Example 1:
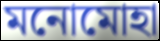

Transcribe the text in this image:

মনোমোহা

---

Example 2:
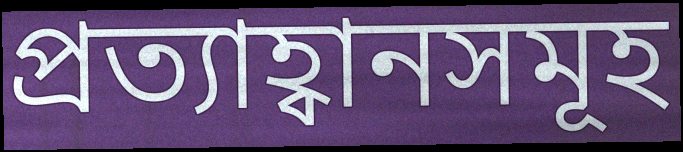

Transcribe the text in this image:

প্ৰত্যাহ্বানসমূহ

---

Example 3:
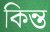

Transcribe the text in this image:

কিন্ত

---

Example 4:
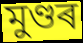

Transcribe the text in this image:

মুণ্ডৰ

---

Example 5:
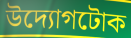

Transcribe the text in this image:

উদ্যোগটোক